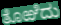
ತೊಱೆದು